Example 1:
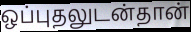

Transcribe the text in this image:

ஒப்புதலுடன்தான்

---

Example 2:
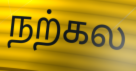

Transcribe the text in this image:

நற்கல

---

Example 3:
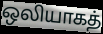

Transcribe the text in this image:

ஒலியாகத்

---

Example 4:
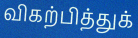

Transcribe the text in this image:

விகற்பித்துக்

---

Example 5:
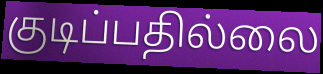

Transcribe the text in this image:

குடிப்பதில்லை